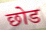
छोड